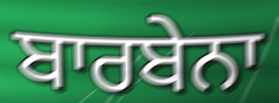
ਬਾਰਬੇਨਾ